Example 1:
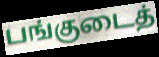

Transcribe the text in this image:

பங்குடைத்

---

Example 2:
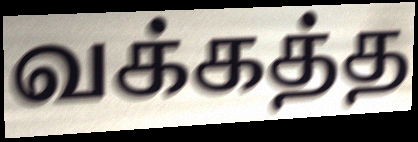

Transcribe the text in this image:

வக்கத்த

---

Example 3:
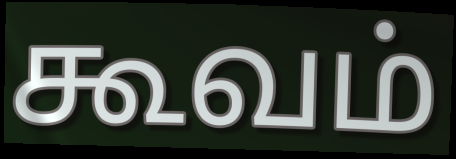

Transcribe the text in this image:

கூவம்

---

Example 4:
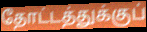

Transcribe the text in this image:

தோட்டத்துக்குப்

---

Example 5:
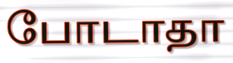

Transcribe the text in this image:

போடாதா